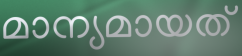
മാന്യമായത്